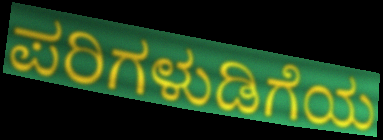
ಪರಿಗಳುಡಿಗೆಯ